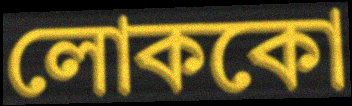
লোককো